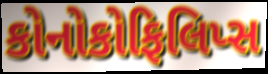
કોનોકોફિલિપ્સ